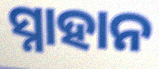
ସ୍ନାହାନ